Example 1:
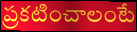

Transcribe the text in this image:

ప్రకటించాలంటే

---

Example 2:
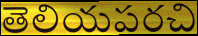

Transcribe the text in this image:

తెలియపరచి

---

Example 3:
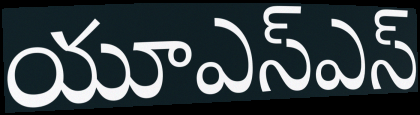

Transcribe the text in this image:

యూఎస్ఎస్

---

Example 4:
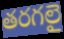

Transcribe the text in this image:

తరగలై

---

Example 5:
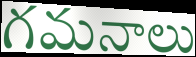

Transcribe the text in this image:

గమనాలు